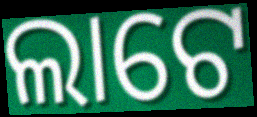
ଲାଟେ